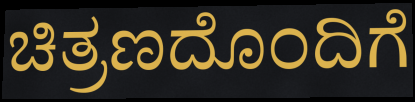
ಚಿತ್ರಣದೊಂದಿಗೆ